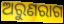
ଅରୁଣରାଗ